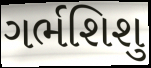
ગર્ભશિશુ